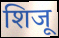
शिजू